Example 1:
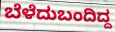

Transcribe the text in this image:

ಬೆಳೆದುಬಂದಿದ್ದ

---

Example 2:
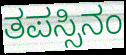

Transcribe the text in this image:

ತಪಸ್ಸಿನಂ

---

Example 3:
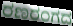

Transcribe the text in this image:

ರಣರಂಗದ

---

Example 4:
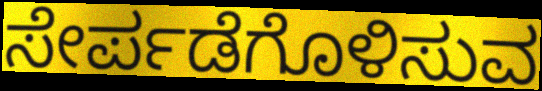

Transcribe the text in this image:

ಸೇರ್ಪಡೆಗೊಳಿಸುವ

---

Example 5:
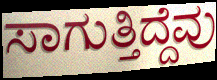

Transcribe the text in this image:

ಸಾಗುತ್ತಿದ್ದೆವು